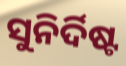
ସୁନିର୍ଦିଷ୍ଟ